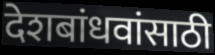
देशबांधवांसाठी